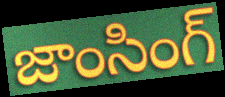
జాంసింగ్